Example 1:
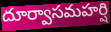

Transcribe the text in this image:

దూర్వాసమహర్షి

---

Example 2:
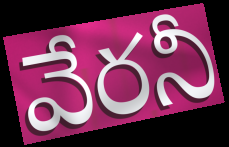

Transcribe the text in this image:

వేరనీ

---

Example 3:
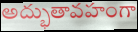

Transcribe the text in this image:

అద్భుతావహంగా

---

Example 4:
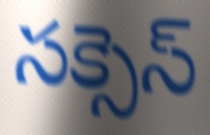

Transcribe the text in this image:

సక్సెస్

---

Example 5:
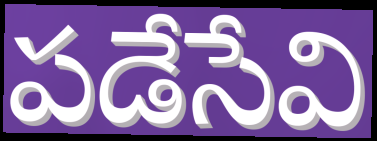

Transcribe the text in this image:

పడేసేవి